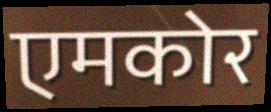
एमकोर